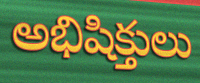
అభిషిక్తులు